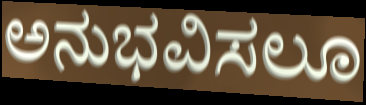
ಅನುಭವಿಸಲೂ